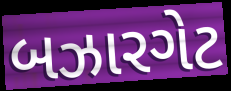
બઝારગેટ